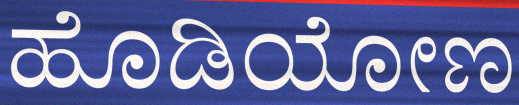
ಹೊಡಿಯೋಣ